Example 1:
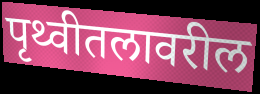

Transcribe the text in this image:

पृथ्वीतलावरील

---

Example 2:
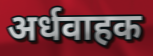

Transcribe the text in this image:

अर्धवाहक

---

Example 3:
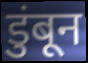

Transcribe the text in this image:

डुंबून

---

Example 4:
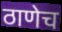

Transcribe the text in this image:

ठाणेच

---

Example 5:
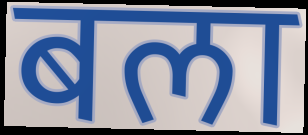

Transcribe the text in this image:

बला